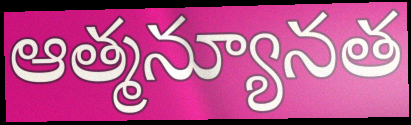
ఆత్మన్యూనత